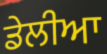
ਡੇਲੀਆ